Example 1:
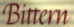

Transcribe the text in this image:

Bittern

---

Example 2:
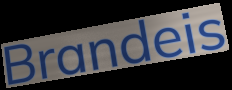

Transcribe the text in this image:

Brandeis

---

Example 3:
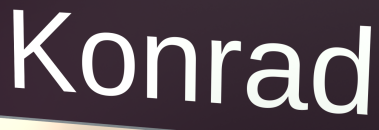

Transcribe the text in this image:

Konrad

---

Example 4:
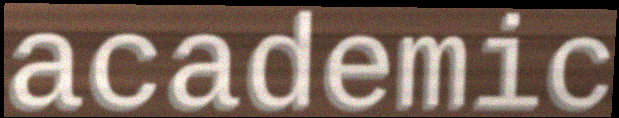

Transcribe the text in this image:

academic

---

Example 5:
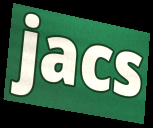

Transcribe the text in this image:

jacs